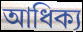
আধিক্য